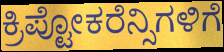
ಕ್ರಿಪ್ಟೋಕರೆನ್ಸಿಗಳಿಗೆ